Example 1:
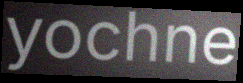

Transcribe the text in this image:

yochne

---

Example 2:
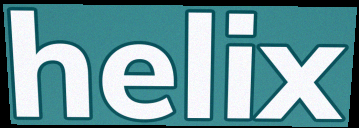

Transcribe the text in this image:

helix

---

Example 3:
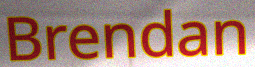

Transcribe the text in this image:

Brendan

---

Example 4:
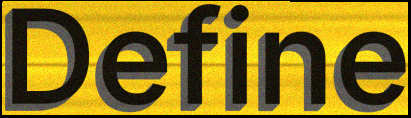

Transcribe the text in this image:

Define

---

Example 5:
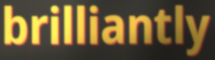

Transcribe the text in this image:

brilliantly